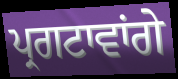
ਪ੍ਰਗਟਾਵਾਂਗੇ